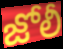
జోలీ